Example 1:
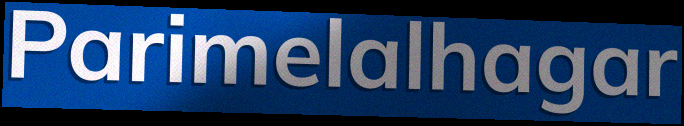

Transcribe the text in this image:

Parimelalhagar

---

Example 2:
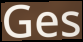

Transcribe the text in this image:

Ges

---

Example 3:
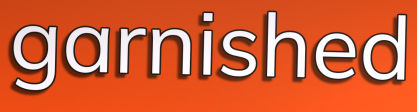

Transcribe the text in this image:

garnished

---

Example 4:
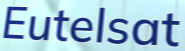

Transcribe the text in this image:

Eutelsat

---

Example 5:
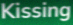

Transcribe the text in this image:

Kissing